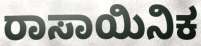
ರಾಸಾಯಿನಿಕ